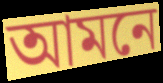
আমনে